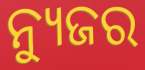
ନ୍ୟୁଜର